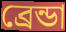
ব্রেন্ডা